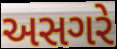
અસગરે